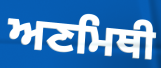
ਅਣਮਿਥੀ